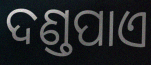
ଦଣ୍ଡପାଏ